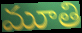
మూతి